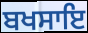
ਬਖਸਾਇ